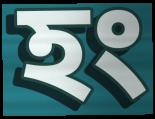
হং